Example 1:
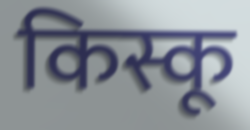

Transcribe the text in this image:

किस्कू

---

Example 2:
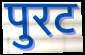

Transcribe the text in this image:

पुरट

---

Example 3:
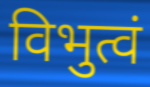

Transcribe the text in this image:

विभुत्वं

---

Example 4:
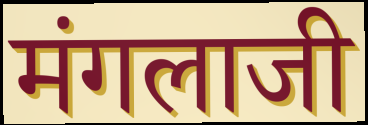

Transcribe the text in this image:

मंगलाजी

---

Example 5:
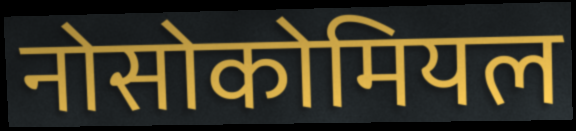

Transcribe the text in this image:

नोसोकोमियल